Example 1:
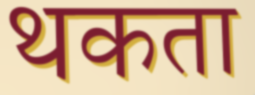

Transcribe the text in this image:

थकता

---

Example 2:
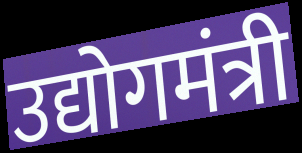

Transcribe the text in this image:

उद्योगमंत्री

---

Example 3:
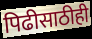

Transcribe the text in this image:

पिढीसाठीही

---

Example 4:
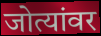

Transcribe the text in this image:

जोत्यांवर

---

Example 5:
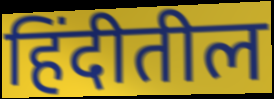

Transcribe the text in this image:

हिंदीतील